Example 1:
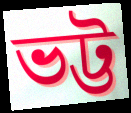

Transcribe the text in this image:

ভট্ট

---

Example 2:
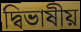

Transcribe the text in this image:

দ্বিভাষীয়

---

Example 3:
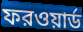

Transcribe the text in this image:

ফরওয়ার্ড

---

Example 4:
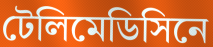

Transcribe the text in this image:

টেলিমেডিসিনে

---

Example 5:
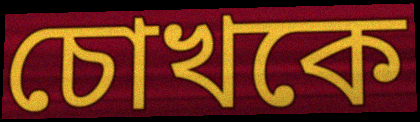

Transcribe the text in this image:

চোখকে